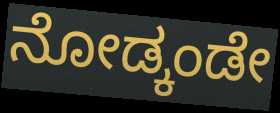
ನೋಡ್ಕಂಡೇ